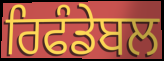
ਰਿਫੰਡੇਬਲ